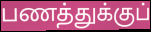
பணத்துக்குப்